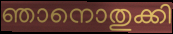
ഞാനൊതുക്കി